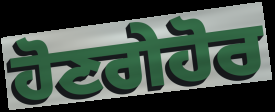
ਹੋਣਗੇਹੋਰ